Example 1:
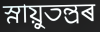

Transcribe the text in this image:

স্নায়ুতন্ত্ৰৰ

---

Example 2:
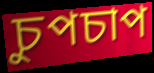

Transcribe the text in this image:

চুপচাপ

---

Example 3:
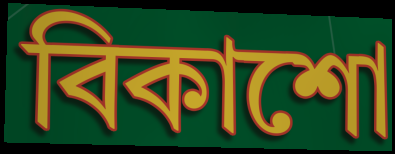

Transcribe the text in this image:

বিকাশো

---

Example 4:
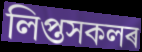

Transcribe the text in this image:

লিপ্তসকলৰ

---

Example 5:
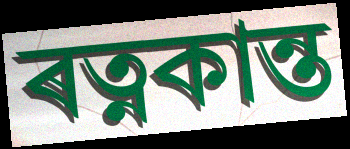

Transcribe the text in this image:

ৰত্নকান্ত